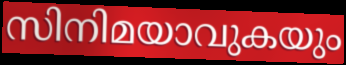
സിനിമയാവുകയും